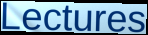
Lectures